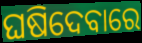
ଘଷିଦେବାରେ